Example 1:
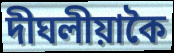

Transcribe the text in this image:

দীঘলীয়াকৈ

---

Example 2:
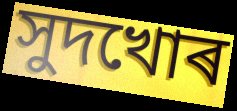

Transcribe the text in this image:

সুদখোৰ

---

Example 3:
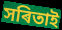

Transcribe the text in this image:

সৰিতাই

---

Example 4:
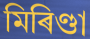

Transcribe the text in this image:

মিৰিণ্ডা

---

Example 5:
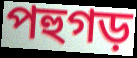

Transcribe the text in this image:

পহুগড়